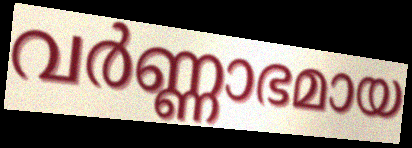
വർണ്ണാഭമായ